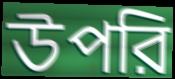
উপরি